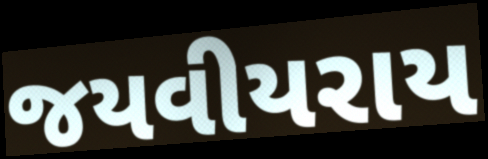
જયવીયરાય